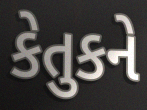
કેતુકને